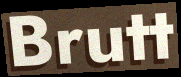
Brutt